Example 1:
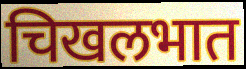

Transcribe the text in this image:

चिखलभात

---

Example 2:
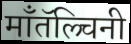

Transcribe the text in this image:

माँतॅल्चिनी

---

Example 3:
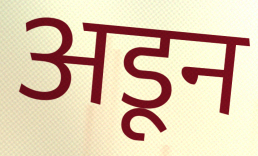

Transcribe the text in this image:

अडून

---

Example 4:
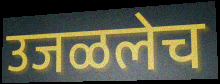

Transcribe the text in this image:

उजळलेच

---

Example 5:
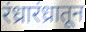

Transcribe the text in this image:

रंध्रारंध्रातून